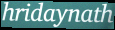
hridaynath